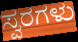
ಸ್ವರಗಳು